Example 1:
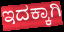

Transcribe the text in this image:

ಇದಕ್ಕಾಗಿ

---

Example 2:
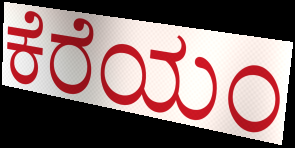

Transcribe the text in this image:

ಕೆರೆಯಂ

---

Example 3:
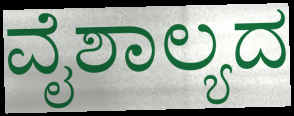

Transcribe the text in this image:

ವೈಶಾಲ್ಯದ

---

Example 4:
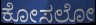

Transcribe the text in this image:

ಕೋಸಲೋ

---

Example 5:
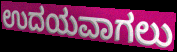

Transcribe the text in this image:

ಉದಯವಾಗಲು